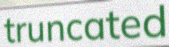
truncated